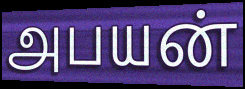
அபயன்